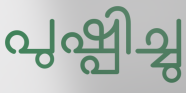
പുഷ്പിച്ചു